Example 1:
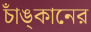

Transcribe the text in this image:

চাঁঙ্‌কানের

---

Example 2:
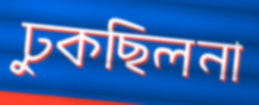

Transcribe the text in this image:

ঢুকছিলনা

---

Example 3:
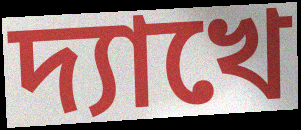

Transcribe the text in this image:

দ্যাখে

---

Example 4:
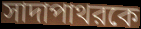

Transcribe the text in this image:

সাদাপাথরকে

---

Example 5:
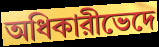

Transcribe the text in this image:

অধিকারীভেদে